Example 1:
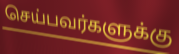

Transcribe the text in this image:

செய்பவர்களுக்கு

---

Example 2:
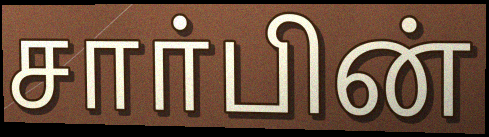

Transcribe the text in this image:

சார்பின்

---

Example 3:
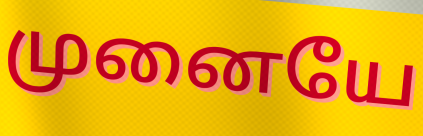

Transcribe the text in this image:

முனையே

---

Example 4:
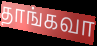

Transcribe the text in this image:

தாங்கவா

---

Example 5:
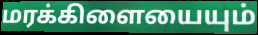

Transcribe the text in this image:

மரக்கிளையையும்